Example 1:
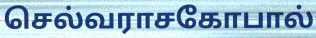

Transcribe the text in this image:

செல்வராசகோபால்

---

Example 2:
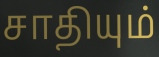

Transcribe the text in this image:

சாதியும்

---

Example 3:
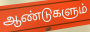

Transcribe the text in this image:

ஆண்டுகளும்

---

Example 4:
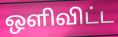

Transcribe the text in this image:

ஒளிவிட்ட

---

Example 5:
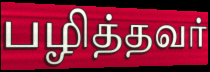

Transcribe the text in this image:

பழித்தவர்